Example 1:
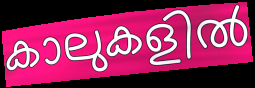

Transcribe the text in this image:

കാലുകളിൽ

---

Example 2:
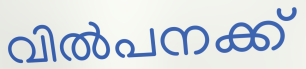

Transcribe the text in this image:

വിൽപനക്ക്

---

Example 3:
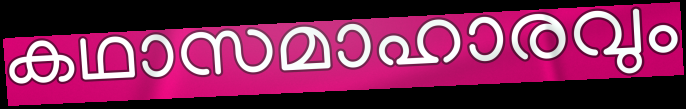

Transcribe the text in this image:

കഥാസമാഹാരവും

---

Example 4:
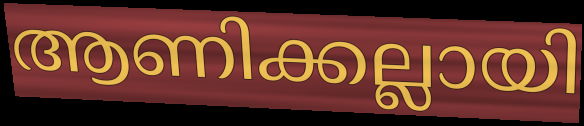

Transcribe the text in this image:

ആണിക്കല്ലായി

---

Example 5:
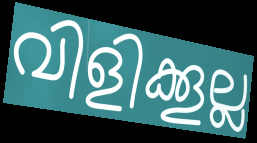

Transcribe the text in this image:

വിളിക്കൂല്ല